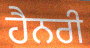
ਹੈਨਰੀ